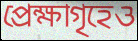
প্রেক্ষাগৃহেও